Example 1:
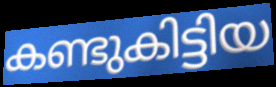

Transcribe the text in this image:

കണ്ടുകിട്ടിയ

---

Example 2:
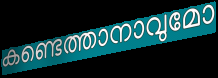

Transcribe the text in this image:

കണ്ടെത്താനാവുമോ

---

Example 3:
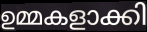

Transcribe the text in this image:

ഉമ്മകളാക്കി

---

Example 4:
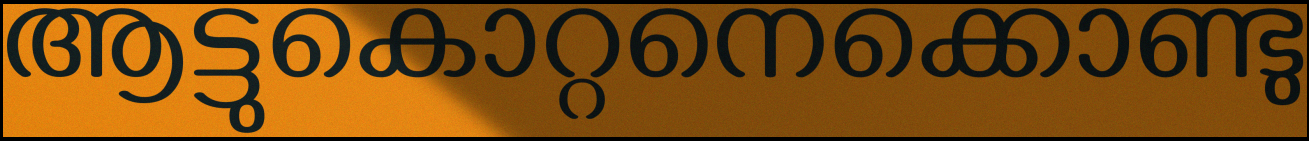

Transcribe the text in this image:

ആട്ടുകൊറ്റനെക്കൊണ്ടു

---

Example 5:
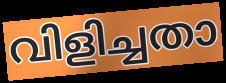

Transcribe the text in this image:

വിളിച്ചതാ